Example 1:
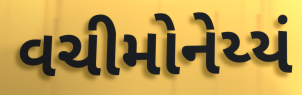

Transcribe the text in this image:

વચીમોનેય્યં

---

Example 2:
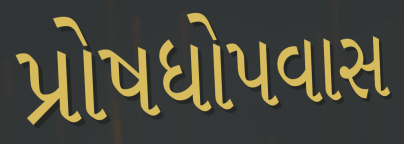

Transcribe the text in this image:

પ્રોષધોપવાસ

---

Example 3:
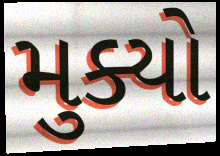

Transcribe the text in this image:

મુક્યો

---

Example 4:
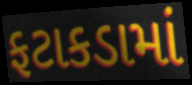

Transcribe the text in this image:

ફટાકડામાં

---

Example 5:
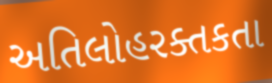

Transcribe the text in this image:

અતિલોહરક્તકતા